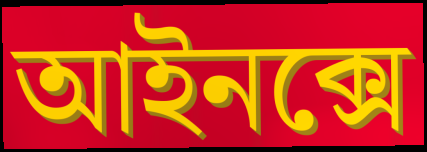
আইনক্সে